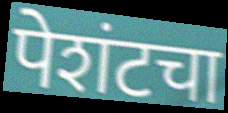
पेशंटचा